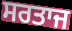
ਸਰਤਾਜ